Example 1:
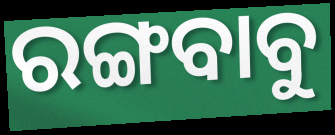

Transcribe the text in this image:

ରଙ୍ଗବାବୁ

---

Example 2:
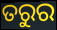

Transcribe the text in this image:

ତରୁର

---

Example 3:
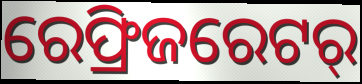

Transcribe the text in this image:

ରେଫ୍ରିଜରେଟର୍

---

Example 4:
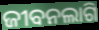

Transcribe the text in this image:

ଜୀବନଲାଗି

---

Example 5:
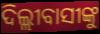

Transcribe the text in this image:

ଦିଲ୍ଲୀବାସୀଙ୍କୁ